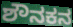
ಶೌನಕನ